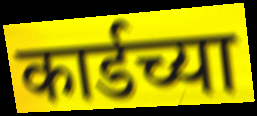
कार्डच्या